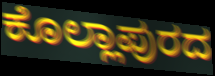
ಕೊಲ್ಲಾಪುರದ